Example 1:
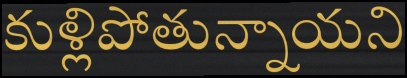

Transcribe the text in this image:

కుళ్లిపోతున్నాయని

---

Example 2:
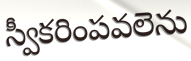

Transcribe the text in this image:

స్వీకరింపవలెను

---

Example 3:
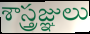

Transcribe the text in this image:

శాస్త్రజ్ఞులు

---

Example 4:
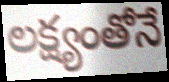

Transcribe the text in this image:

లక్ష్యంతోనే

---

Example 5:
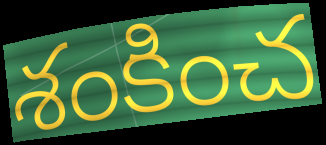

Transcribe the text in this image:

శంకించ